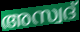
അസ്വദ്